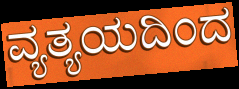
ವ್ಯತ್ಯಯದಿಂದ